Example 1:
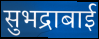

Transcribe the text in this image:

सुभद्राबाई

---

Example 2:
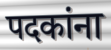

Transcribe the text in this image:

पदकांना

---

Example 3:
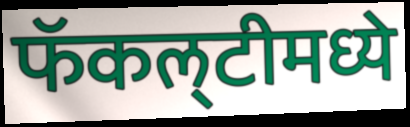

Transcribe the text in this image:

फॅकल्टीमध्ये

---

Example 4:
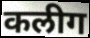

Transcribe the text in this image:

कलीग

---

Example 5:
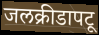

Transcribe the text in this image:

जलक्रीडापटू